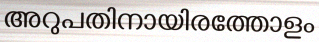
അറുപതിനായിരത്തോളം